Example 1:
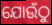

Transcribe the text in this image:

ଯୋଉଁଠୁ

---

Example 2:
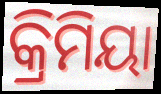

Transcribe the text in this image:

କ୍ରିମିୟା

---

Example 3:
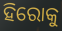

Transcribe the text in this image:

ହିରୋକୁ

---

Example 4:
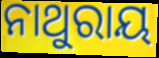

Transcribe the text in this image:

ନାଥୁରାୟ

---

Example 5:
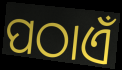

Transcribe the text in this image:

ପଠାଏଁ